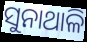
ସୁନାଥାଳି